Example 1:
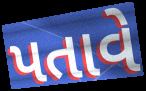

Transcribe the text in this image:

પતાવે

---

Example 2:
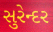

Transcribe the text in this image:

સુરેન્દર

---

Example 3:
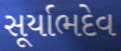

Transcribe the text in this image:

સૂર્યાભદેવ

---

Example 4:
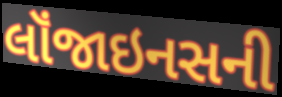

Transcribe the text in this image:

લૉંજાઇનસની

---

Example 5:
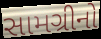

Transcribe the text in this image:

સામગ્રીનો